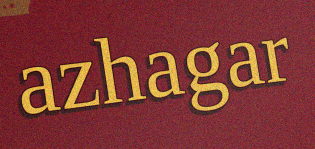
azhagar